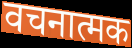
वचनात्मक